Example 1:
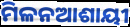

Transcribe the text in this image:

ମିଳନଆଶାୟୀ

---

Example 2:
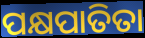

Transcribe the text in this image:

ପକ୍ଷପାତିତା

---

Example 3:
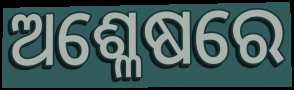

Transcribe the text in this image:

ଅଶ୍ଳେଷରେ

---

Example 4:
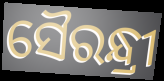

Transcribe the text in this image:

ସୈରନ୍ଧ୍ରୀ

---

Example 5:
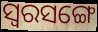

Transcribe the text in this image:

ସ୍ୱରସଙ୍ଗେ